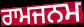
ਰਾਮਜਨਮ